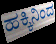
ಹಕ್ಕಿನಿಂದ